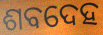
ଶବଦେହ